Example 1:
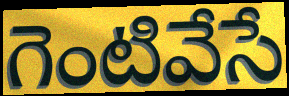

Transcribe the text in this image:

గెంటివేసే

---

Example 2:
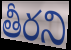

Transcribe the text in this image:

తీరని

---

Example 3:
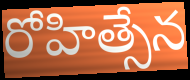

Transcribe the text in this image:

రోహిత్సేన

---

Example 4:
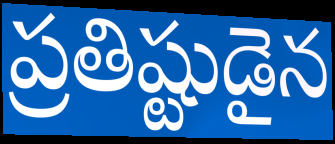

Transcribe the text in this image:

ప్రతిష్టుడైన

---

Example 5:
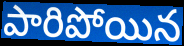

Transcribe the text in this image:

పారిపోయిన